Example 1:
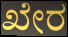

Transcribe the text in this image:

ಖೇರ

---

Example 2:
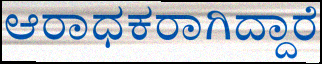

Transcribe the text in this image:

ಆರಾಧಕರಾಗಿದ್ದಾರೆ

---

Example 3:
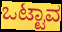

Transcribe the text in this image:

ಒಟ್ಟಾವ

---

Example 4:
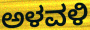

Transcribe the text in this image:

ಅಳವಳಿ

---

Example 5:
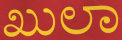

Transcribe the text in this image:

ಖುಲಾ